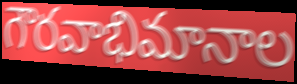
గౌరవాభిమానాల